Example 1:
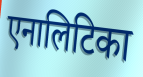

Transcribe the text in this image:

एनालिटिका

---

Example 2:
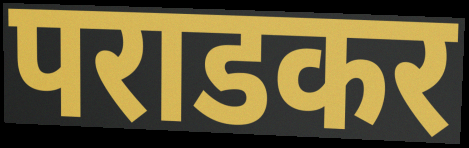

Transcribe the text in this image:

पराडकर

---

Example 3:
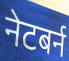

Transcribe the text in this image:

नेटबर्न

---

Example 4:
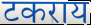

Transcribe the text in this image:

टकराय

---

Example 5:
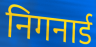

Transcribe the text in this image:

निगनार्ड